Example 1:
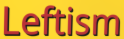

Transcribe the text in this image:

Leftism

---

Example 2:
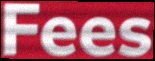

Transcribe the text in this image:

Fees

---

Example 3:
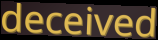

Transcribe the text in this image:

deceived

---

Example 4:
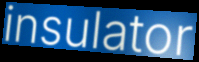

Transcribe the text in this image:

insulator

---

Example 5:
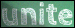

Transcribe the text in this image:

unite